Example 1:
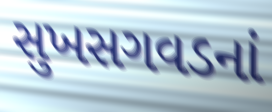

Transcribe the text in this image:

સુખસગવડનાં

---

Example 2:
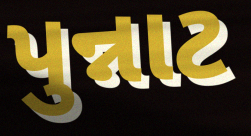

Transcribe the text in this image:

પુન્નાટ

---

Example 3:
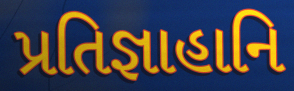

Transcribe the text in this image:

પ્રતિજ્ઞાહાનિ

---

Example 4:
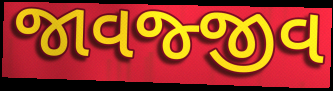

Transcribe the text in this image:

જાવજ્જીવ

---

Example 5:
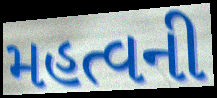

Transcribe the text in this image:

મહત્વની